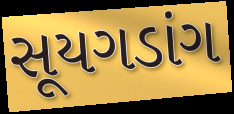
સૂયગડાંગ